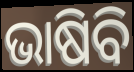
ଭାଷିବି